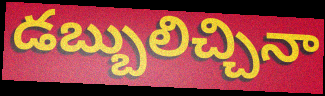
డబ్బులిచ్చినా